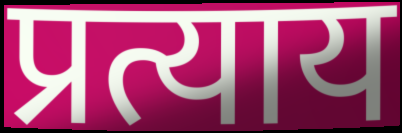
प्रत्याय